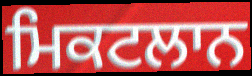
ਮਿਕਟਲਾਨ